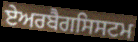
ਏਅਰਬੈਗਸਿਸਟਮ